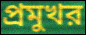
প্রমুখর